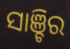
ସାଞ୍ଚିର